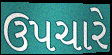
ઉપચારે